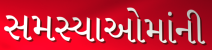
સમસ્યાઓમાંની